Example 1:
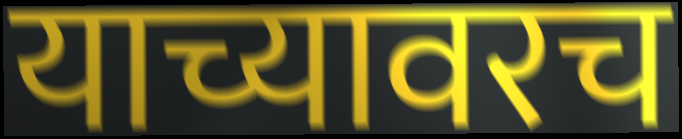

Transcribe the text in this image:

याच्यावरच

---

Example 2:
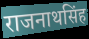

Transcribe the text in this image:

राजनाथसिंह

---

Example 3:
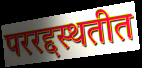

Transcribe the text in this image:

पररद्दस्थतीत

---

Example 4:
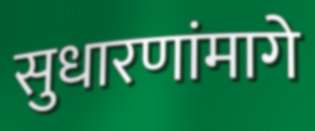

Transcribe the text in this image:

सुधारणांमागे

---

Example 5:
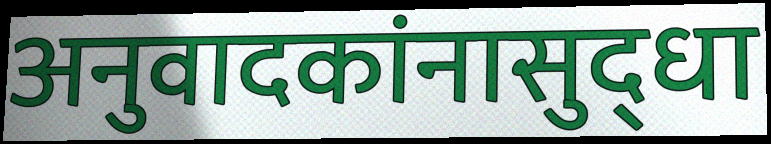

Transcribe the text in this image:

अनुवादकांनासुद्धा